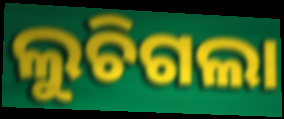
ଲୁଚିଗଲା